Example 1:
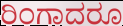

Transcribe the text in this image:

ರಿಂಗಾದರೂ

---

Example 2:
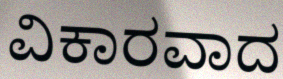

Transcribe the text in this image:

ವಿಕಾರವಾದ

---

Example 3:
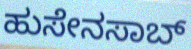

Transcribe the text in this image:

ಹುಸೇನಸಾಬ್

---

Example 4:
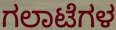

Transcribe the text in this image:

ಗಲಾಟೆಗಳ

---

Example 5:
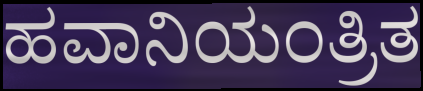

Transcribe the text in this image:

ಹವಾನಿಯಂತ್ರಿತ